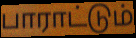
பாராட்டும்